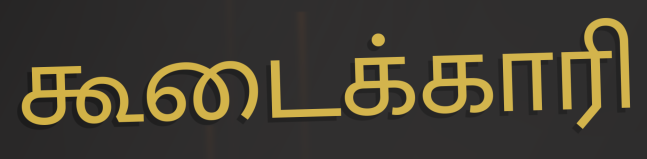
கூடைக்காரி